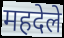
महदेले